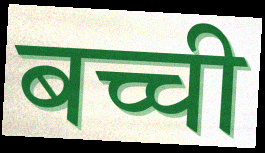
बच्ची